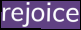
rejoice